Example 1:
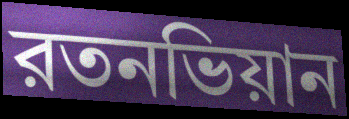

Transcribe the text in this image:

রতনভিয়ান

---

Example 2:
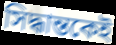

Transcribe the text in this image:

সিদ্ধান্তকেই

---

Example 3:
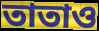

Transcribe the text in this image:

তাতাও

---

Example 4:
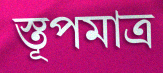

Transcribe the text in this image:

স্তূপমাত্র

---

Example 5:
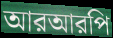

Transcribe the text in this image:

আরআরপি